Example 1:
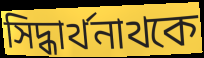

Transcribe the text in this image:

সিদ্ধার্থনাথকে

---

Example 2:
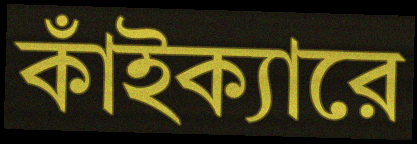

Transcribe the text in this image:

কাঁইক্যারে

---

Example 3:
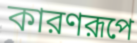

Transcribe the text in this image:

কারণরূপে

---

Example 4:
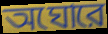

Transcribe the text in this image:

অঘোরে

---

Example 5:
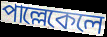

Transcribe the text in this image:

পাল্লেকেলে